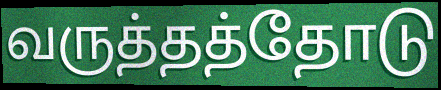
வருத்தத்தோடு